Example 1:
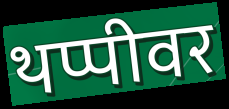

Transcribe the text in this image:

थप्पीवर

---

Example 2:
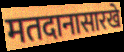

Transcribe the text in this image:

मतदानासारखे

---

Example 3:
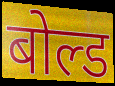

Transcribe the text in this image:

बोल्ड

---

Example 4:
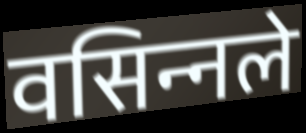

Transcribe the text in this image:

वसिन्नले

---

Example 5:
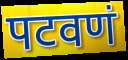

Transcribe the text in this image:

पटवणं